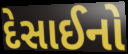
દેસાઈનો